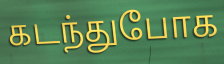
கடந்துபோக